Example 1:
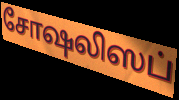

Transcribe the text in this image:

சோஷலிஸப்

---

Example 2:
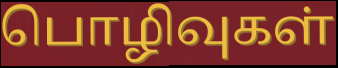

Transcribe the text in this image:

பொழிவுகள்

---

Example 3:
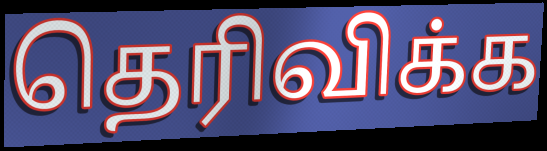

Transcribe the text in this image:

தெரிவிக்க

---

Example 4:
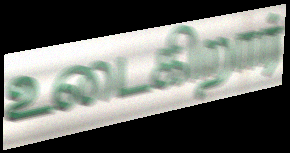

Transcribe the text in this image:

உடைகிறார்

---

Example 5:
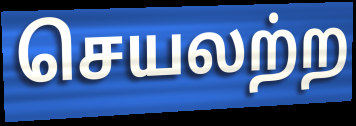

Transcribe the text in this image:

செயலற்ற